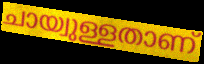
ചായ്വുള്ളതാണ്